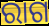
ରାଗ